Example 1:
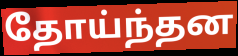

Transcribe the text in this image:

தோய்ந்தன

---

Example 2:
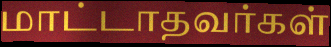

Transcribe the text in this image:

மாட்டாதவர்கள்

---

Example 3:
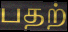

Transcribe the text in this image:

பதற்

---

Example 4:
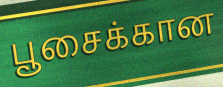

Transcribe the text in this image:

பூசைக்கான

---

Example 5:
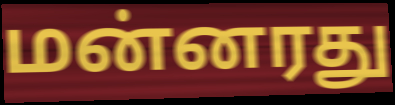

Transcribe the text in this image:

மன்னரது